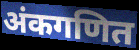
अंकगणित